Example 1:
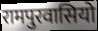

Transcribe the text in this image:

रामपुरवासियो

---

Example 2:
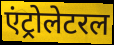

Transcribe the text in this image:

एंट्रोलेटरल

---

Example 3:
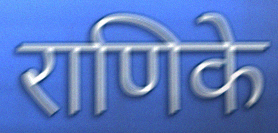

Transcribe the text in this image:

राणिके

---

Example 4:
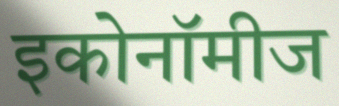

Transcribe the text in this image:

इकोनॉमीज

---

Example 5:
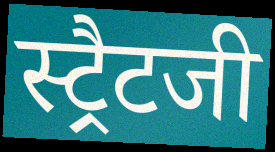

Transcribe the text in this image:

स्ट्रैटजी